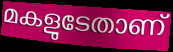
മകളുടേതാണ്